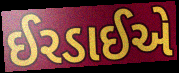
ઈરડાઈએ